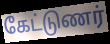
கேட்டுணர்